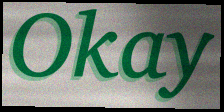
Okay